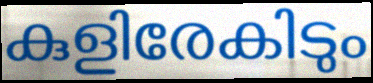
കുളിരേകിടും